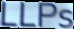
LLPs